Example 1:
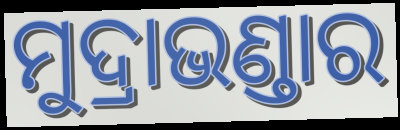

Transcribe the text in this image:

ମୁଦ୍ରାଭଣ୍ଡାର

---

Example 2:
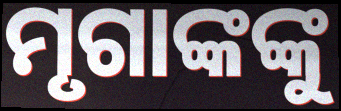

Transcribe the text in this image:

ମୃଗାଙ୍କଙ୍କୁ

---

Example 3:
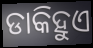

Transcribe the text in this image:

ଡାକିହୁଏ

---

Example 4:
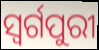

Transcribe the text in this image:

ସ୍ଵର୍ଗପୁରୀ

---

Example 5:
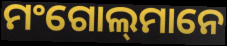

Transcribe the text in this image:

ମଂଗୋଲ୍‍ମାନେ